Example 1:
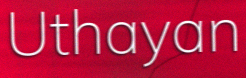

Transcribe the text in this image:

Uthayan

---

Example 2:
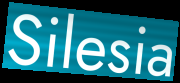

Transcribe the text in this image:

Silesia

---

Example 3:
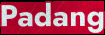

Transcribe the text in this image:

Padang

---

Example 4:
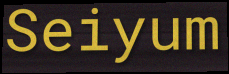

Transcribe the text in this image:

Seiyum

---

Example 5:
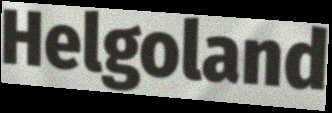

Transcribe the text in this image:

Helgoland